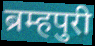
ब्रम्हपुरी